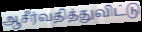
ஆசீர்வதித்துவிட்டு